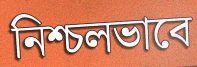
নিশ্চলভাবে